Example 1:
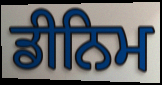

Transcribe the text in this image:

ਡੀਨਿਮ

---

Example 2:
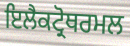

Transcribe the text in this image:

ਇਲੈਕਟ੍ਰੋਥਰਮਲ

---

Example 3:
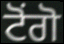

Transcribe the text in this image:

ਟੋਂਗੋ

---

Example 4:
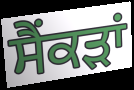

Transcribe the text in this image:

ਸੈਂਕੜਾਂ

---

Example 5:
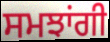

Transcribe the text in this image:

ਸਮਝਾਂਗੀ